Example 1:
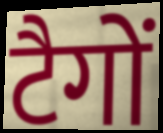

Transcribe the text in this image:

टैगों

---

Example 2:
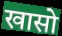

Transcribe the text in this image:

खासो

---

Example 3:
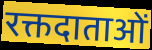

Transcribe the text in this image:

रक्तदाताओं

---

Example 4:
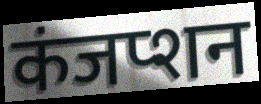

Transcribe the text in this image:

कंजप्शन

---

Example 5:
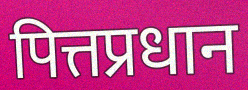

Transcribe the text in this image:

पित्तप्रधान